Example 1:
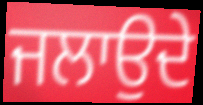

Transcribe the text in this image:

ਜਲਾਉਦੇ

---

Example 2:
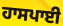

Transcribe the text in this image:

ਹਾਸਪਾਈ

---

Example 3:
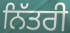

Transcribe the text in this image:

ਨਿੱਤਰੀ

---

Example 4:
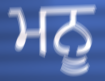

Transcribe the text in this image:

ਮਨੂ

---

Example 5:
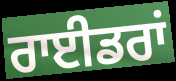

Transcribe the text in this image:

ਰਾਈਡਰਾਂ